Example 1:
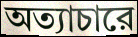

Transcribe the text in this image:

অত্যাচারে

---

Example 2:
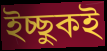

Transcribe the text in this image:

ইচ্ছুকই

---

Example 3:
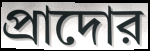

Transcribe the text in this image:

প্রাদোর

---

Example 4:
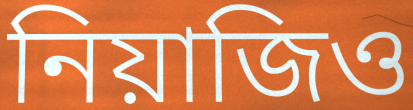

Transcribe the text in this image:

নিয়াজিও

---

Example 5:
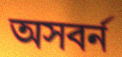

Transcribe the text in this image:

অসবর্ন